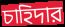
চাহিদার